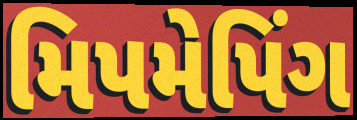
મિપમેપિંગ